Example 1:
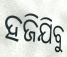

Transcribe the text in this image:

ହଜିଯିବୁ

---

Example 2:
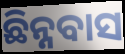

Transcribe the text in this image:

ଛିନ୍ନବାସ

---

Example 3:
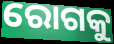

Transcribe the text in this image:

ରୋଗକୁ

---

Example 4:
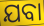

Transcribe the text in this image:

ଯବା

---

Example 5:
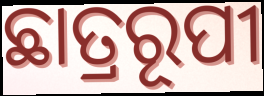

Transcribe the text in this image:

ଛାତ୍ରରୂପୀ